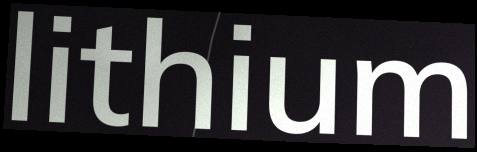
lithium